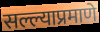
सल्ल्याप्रमाणे